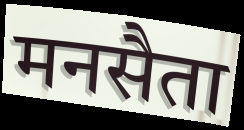
मनसैता